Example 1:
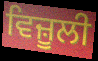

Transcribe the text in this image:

ਵਿਜ਼ੂਲੀ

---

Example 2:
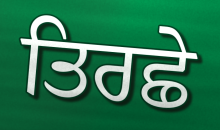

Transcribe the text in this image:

ਤਿਰਛੇ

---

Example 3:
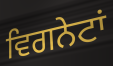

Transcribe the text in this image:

ਵਿਗਨੇਟਾਂ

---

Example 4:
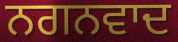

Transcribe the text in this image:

ਨਗਨਵਾਦ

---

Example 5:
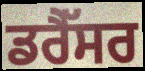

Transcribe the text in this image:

ਡਰੈੱਸਰ